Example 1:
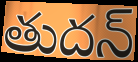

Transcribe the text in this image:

తుదన్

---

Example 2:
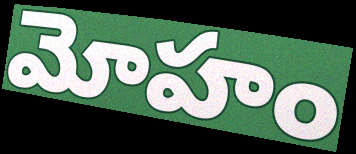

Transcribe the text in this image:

మోహం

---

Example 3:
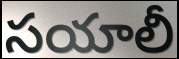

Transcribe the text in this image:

సయాలీ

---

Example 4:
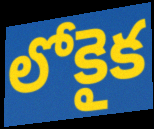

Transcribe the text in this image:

లోకైక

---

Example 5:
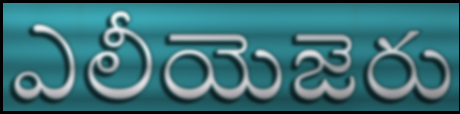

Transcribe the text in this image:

ఎలీయెజెరు